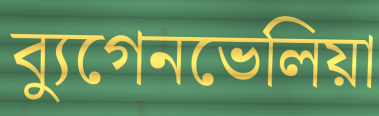
ব্যুগেনভেলিয়া